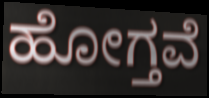
ಹೋಗ್ತವೆ